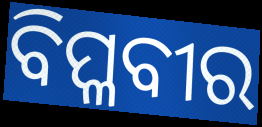
ବିପ୍ଳବୀର